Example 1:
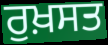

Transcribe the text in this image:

ਰੁਖ਼ਸਤ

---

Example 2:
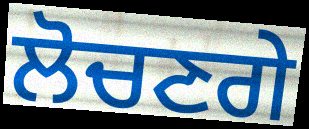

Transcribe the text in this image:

ਲੋਚਣਗੇ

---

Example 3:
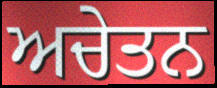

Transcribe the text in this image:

ਅਚੇਤਨ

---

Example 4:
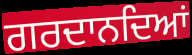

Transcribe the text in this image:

ਗਰਦਾਨਦਿਆਂ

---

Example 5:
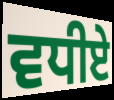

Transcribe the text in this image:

ਵਧੀਏ